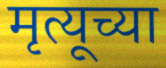
मृत्यूच्या